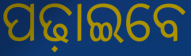
ପଢ଼ାଇବେ